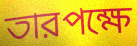
তারপক্ষে